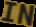
IN